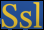
Ssl